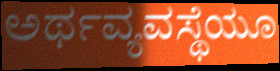
ಅರ್ಥವ್ಯವಸ್ಥೆಯೂ